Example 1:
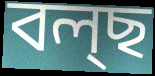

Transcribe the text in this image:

বল্‌ছ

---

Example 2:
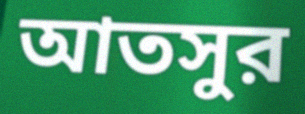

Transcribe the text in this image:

আতসুর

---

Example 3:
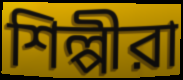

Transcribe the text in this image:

শিল্পীরা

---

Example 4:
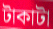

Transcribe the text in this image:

টাকাটা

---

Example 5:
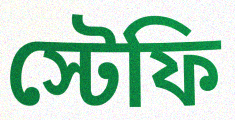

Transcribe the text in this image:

স্টেফি